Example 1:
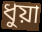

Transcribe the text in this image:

ধুয়া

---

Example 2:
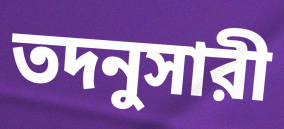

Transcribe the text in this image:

তদনুসারী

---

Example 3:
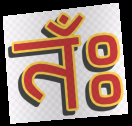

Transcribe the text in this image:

নঁঃ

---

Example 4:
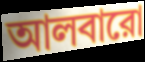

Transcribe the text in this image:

আলবারো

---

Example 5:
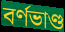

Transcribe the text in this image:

বর্ণভাণ্ড